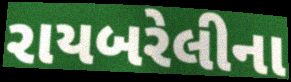
રાયબરેલીના